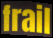
frail